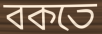
বকতে